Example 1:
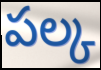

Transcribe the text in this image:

పల్క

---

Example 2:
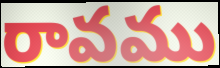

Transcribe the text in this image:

రావము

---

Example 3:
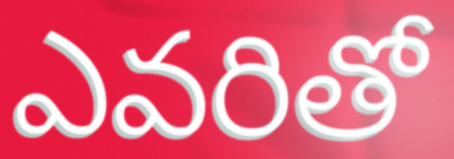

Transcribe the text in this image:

ఎవరితో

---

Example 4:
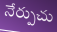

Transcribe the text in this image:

నేర్పుచు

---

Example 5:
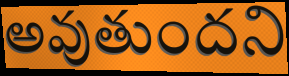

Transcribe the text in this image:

అవుతుందని